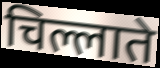
चिल्लाते